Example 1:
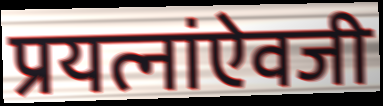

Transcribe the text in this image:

प्रयत्नांऐवजी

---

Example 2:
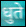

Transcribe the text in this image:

धुते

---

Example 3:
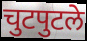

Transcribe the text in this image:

चुटपुटले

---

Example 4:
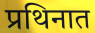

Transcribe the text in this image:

प्रथिनात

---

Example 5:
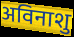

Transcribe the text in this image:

अविनाशु